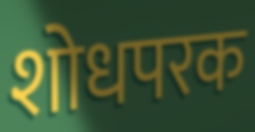
शोधपरक